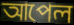
আপেল